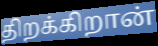
திறக்கிறான்